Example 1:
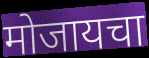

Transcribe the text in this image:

मोजायचा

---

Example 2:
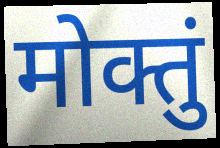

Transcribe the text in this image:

मोक्तुं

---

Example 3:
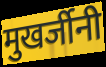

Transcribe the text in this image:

मुखर्जीनी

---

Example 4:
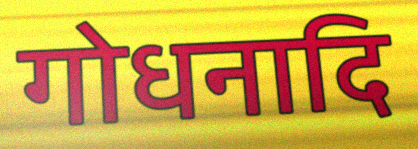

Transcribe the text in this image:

गोधनादि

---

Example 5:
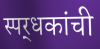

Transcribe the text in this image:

स्पर्धकांची